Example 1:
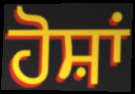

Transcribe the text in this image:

ਹੋਸ਼ਾਂ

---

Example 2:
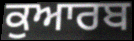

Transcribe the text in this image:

ਕੁਆਰਬ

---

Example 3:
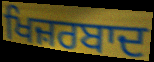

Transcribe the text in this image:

ਖਿਜ਼ਰਬਾਦ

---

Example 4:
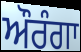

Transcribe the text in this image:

ਔਰੰਗਾ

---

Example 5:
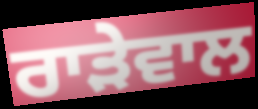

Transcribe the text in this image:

ਰਾੜੇਵਾਲ